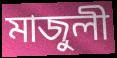
মাজুলী